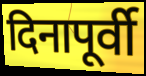
दिनापूर्वी